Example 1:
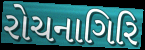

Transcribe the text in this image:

રોચનાગિરિ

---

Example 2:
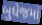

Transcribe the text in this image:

બુધેજમાં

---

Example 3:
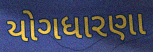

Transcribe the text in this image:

યોગધારણા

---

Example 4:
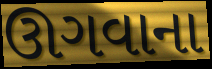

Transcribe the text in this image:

ઊગવાના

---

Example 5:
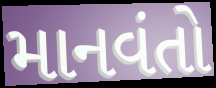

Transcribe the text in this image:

માનવંતો